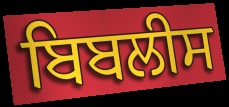
ਬਿਬਲੀਸ